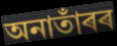
অনাতাঁৰৰ